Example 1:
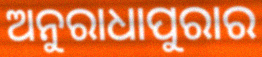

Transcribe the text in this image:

ଅନୁରାଧାପୁରାର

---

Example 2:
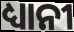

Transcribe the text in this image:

ଧ୍ୟାନୀ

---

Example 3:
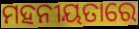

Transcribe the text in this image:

ମହନୀୟତାରେ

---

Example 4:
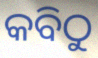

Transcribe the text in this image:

କବିଠୁ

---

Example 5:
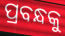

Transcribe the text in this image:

ପ୍ରବନ୍ଧକୁ